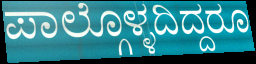
ಪಾಲ್ಗೊಳ್ಳದಿದ್ದರೂ